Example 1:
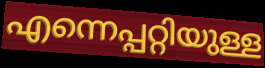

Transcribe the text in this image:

എന്നെപ്പറ്റിയുള്ള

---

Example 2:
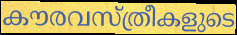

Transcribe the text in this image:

കൗരവസ്ത്രീകളുടെ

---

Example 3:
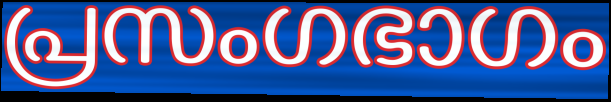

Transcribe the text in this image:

പ്രസംഗഭാഗം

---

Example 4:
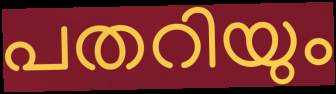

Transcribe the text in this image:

പതറിയും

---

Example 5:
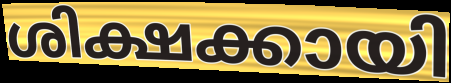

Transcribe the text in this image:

ശിക്ഷക്കായി